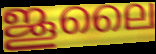
ജൂലൈ